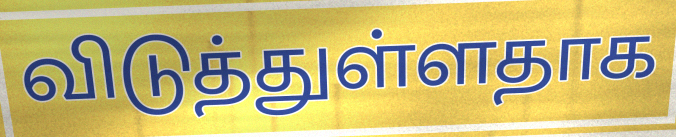
விடுத்துள்ளதாக